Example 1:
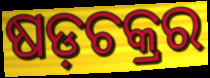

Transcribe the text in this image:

ଷଡ଼ଚକ୍ରର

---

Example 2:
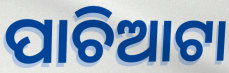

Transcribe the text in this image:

ପାଚିଆଟା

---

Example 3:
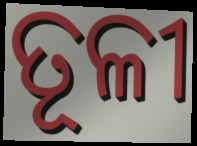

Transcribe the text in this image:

ତୂଳୀ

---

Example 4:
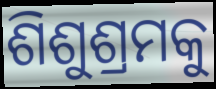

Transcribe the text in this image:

ଶିଶୁଶ୍ରମକୁ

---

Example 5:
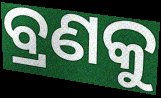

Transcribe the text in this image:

ବ୍ରଣକୁ